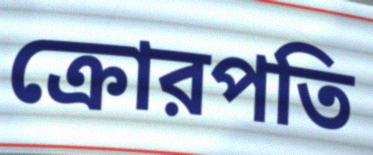
ক্রোরপতি